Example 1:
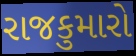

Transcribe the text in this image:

રાજકુમારો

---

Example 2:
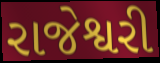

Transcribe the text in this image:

રાજેશ્વરી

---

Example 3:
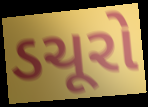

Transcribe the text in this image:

ડચૂરો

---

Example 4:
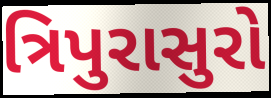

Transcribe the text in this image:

ત્રિપુરાસુરો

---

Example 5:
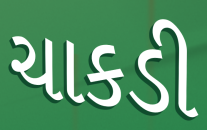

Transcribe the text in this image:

ચાકડી